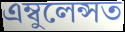
এম্বুলেন্সত